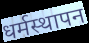
धर्मस्थापन